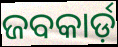
ଜବକାର୍ଡ଼